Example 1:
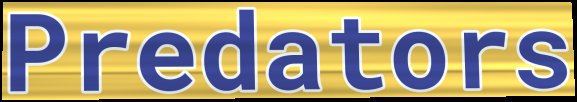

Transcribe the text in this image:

Predators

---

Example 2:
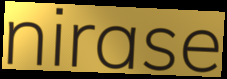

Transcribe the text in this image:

nirase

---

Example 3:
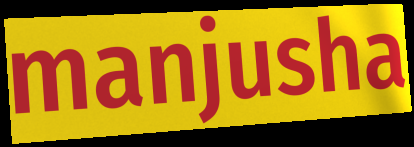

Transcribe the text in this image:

manjusha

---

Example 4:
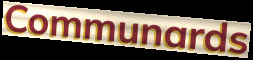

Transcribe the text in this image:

Communards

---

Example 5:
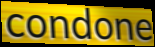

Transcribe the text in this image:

condone